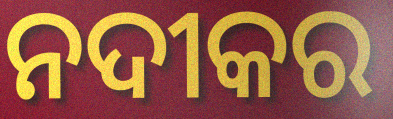
ନଦୀକର